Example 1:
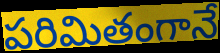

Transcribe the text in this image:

పరిమితంగానే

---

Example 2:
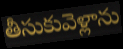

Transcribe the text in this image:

తీసుకువెళ్లాను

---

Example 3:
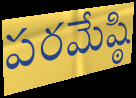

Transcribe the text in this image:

పరమేష్ఠి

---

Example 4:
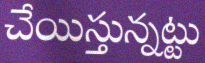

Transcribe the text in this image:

చేయిస్తున్నట్టు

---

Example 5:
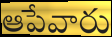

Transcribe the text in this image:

ఆపేవారు